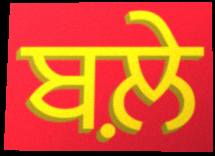
ਬਲ਼ੇ